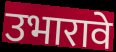
उभारावे